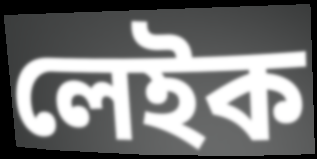
লেইক